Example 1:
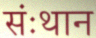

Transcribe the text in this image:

संःथान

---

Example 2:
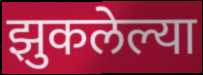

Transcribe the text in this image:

झुकलेल्या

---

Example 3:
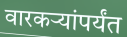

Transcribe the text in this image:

वारकऱ्यांपर्यंत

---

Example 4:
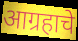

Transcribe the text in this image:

आग्रहाचे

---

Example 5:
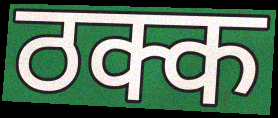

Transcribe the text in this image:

ठक्क